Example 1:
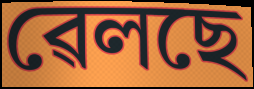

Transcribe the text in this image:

ৱেলছে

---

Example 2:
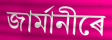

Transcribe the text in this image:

জাৰ্মানীৰে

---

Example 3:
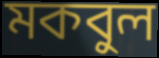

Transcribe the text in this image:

মকবুল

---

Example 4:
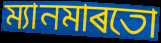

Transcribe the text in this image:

ম্যানমাৰতো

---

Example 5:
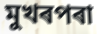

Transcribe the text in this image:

মুখৰপৰা